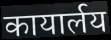
कायार्लय